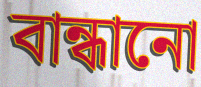
বান্ধানো